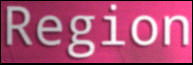
Region